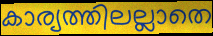
കാര്യത്തിലല്ലാതെ